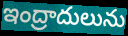
ఇంద్రాదులును